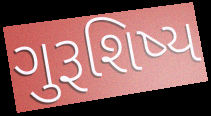
ગુરૂશિષ્ય